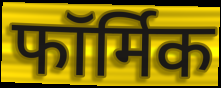
फॉर्मिक